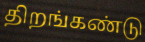
திறங்கண்டு